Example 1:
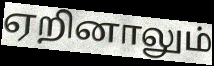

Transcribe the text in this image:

ஏறினாலும்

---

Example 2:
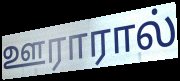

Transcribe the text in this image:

ஊராரால்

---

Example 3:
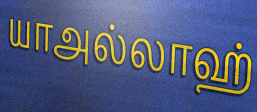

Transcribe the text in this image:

யாஅல்லாஹ்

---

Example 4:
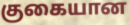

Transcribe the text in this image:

குகையான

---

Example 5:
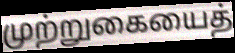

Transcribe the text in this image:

முற்றுகையைத்